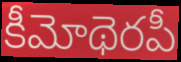
కీమోథెరపీ